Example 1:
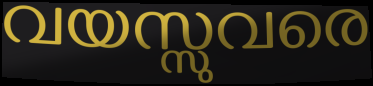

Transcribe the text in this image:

വയസ്സുവരെ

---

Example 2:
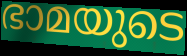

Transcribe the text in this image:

ഭാമയുടെ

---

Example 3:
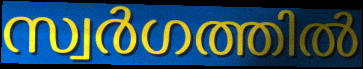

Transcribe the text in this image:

സ്വർഗത്തിൽ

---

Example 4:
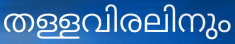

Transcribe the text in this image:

തള്ളവിരലിനും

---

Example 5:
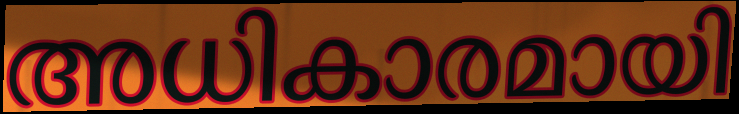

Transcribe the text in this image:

അധികാരമായി